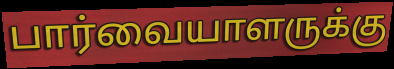
பார்வையாளருக்கு